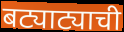
बट्याट्याची